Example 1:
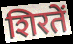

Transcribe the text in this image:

शिरतें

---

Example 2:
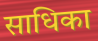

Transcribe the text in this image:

साधिका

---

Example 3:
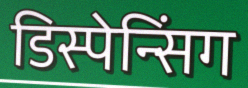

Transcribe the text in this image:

डिस्पेन्सिंग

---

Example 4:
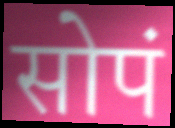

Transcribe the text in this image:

सोपं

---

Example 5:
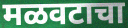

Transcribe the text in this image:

मळवटाचा